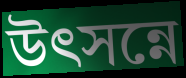
উৎসন্নে